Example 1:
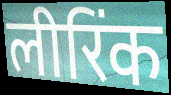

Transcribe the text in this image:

लीरिंक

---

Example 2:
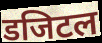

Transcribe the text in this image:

डजिटल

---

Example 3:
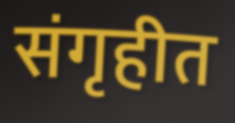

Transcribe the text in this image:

संगृहीत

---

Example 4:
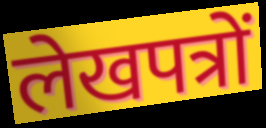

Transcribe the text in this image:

लेखपत्रों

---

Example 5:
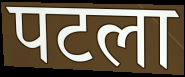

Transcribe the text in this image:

पटला